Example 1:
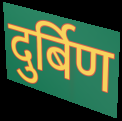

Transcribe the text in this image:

दुर्बिण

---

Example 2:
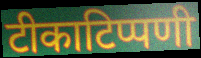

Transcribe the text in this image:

टीकाटिप्पणी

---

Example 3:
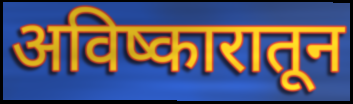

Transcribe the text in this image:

अविष्कारातून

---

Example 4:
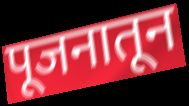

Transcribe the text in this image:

पूजनातून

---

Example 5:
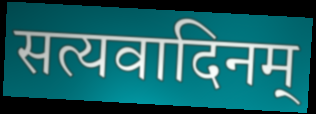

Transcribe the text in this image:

सत्यवादिनम्